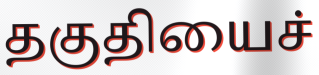
தகுதியைச்